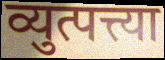
व्युत्पत्त्या